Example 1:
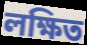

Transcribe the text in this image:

লক্ষিত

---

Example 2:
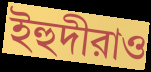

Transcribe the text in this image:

ইহুদীরাও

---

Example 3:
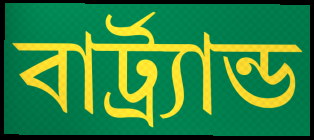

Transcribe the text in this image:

বার্ট্র্যান্ড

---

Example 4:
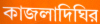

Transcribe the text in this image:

কাজলাদিঘির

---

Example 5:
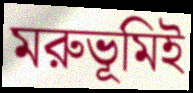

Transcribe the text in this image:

মরুভূমিই